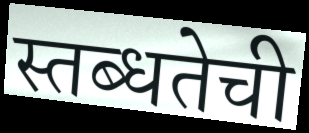
स्तब्धतेची